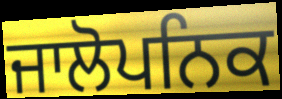
ਜਾਲੋਪਨਿਕ